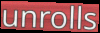
unrolls